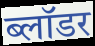
ब्लॉडर